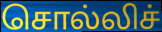
சொல்லிச்